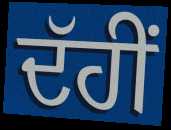
ਦੱਹੀਂ